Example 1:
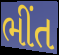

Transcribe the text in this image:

ભીંત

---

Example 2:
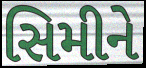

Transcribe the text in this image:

સિમીને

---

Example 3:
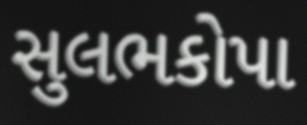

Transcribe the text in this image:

સુલભકોપા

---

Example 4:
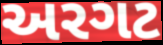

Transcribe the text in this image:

અરગટ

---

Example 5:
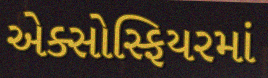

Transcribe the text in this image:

એક્સોસ્ફિયરમાં